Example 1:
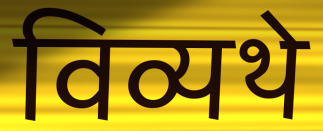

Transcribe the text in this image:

विव्यथे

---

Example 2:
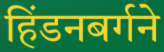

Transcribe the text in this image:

हिंडनबर्गने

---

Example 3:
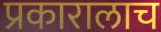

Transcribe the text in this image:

प्रकारालाच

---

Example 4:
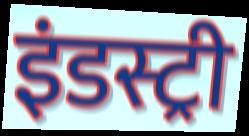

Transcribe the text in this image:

इंडस्ट्री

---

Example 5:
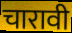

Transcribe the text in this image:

चारावी